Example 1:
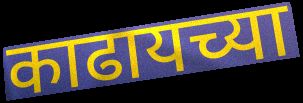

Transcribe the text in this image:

काढायच्या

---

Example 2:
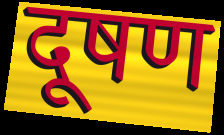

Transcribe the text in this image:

दूषण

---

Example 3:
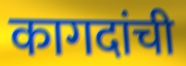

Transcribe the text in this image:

कागदांची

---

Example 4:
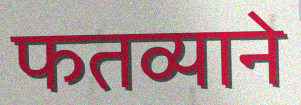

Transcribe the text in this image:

फतव्याने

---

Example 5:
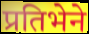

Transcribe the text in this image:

प्रतिभेने